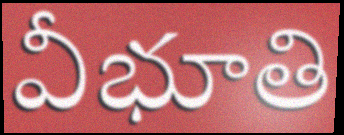
వీభూతి